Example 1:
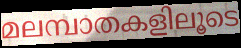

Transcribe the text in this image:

മലമ്പാതകളിലൂടെ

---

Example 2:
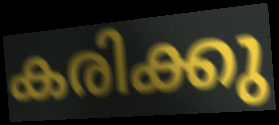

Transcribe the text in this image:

കരിക്കു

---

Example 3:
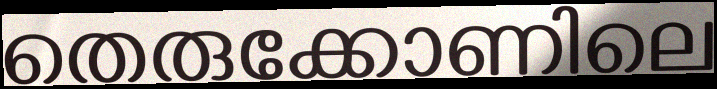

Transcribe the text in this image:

തെരുക്കോണിലെ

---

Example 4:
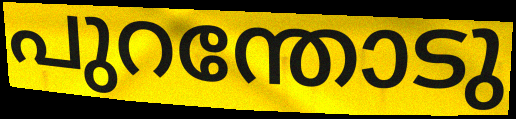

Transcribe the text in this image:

പുറന്തോടു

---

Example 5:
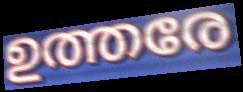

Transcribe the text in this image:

ഉത്തരേ